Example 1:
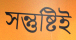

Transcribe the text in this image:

সন্তুষ্টিই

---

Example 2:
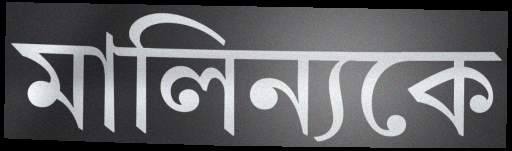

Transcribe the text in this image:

মালিন্যকে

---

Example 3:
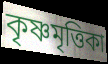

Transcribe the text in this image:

কৃষ্ণমৃত্তিকা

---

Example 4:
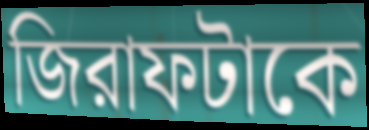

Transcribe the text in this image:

জিরাফটাকে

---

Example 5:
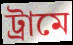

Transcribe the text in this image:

ট্রামে